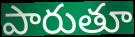
పారుతూ